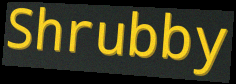
Shrubby